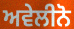
ਅਵੇਲੀਨੋ